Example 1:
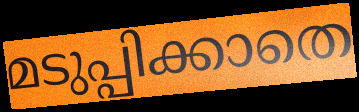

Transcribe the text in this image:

മടുപ്പിക്കാതെ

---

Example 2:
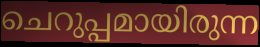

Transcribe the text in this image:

ചെറുപ്പമായിരുന്ന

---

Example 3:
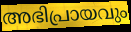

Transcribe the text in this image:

അഭിപ്രായവും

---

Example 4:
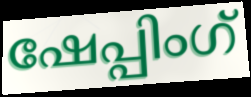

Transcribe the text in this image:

ഷേപ്പിംഗ്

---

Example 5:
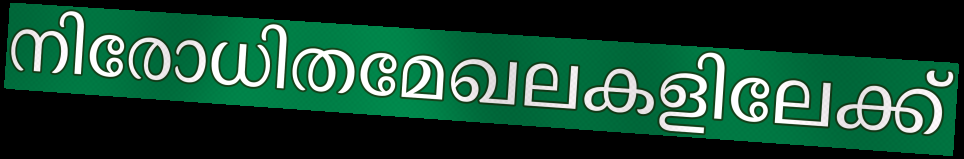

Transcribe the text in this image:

നിരോധിതമേഖലകളിലേക്ക്